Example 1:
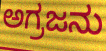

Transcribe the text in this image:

ಅಗ್ರಜನು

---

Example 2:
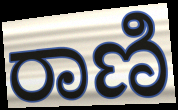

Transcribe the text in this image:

ರಾಣಿ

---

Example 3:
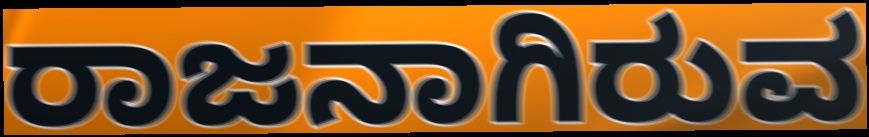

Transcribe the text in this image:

ರಾಜನಾಗಿರುವ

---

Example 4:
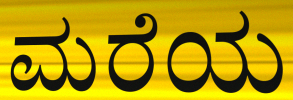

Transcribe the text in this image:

ಮರೆಯ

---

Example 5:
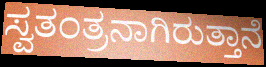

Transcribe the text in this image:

ಸ್ವತಂತ್ರನಾಗಿರುತ್ತಾನೆ